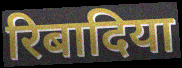
रिबादिया